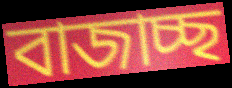
বাজাচ্ছ